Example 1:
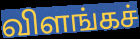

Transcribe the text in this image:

விளங்கச்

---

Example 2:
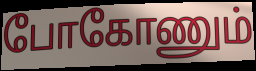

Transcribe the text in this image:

போகோணும்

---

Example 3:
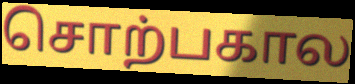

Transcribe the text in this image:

சொற்பகால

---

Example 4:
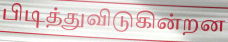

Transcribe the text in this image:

பிடித்துவிடுகின்றன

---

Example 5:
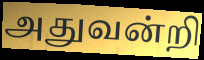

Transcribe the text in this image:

அதுவன்றி